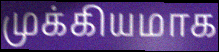
முக்கியமாக